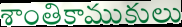
శాంతికాముకులు